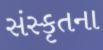
સંસ્‍કૃતના